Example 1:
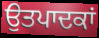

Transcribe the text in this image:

ਉਤਪਾਦਕਾਂ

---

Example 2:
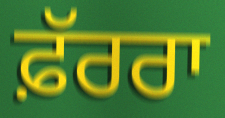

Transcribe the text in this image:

ਫ਼ੱਰਰਾ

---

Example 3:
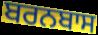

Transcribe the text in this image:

ਬਰਨਬਾਸ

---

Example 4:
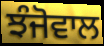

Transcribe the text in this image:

ਝੰਜੋਵਾਲ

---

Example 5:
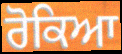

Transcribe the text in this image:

ਰੋਕਿਆ